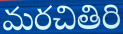
మరచితిరి